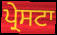
ਪ੍ਰੇਸਟਾ